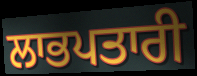
ਲਾਭਪਤਾਰੀ